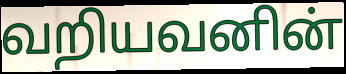
வறியவனின்